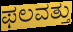
ಫಲವತ್ತು